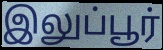
இலுப்பூர்